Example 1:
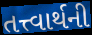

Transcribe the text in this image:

તત્ત્વાર્થની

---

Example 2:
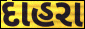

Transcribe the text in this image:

દાહરા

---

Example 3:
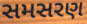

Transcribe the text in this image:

સમસરણ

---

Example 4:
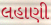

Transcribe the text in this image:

લહાણી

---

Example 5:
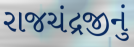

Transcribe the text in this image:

રાજચંદ્રજીનું